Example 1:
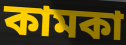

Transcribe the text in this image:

কামকা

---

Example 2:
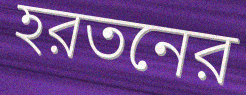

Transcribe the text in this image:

হরতনের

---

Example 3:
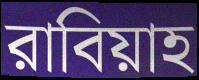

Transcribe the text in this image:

রাবিয়াহ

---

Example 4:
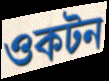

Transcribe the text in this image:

ওকটন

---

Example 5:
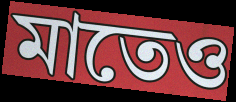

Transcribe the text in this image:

মাতেও